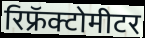
रिफ्रॅक्टोमीटर